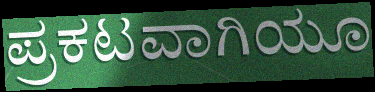
ಪ್ರಕಟವಾಗಿಯೂ